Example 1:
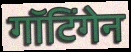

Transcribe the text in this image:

गॉटिंगेन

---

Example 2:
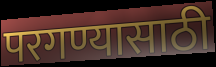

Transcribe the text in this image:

परगण्यासाठी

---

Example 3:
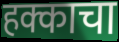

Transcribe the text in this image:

हक्काचा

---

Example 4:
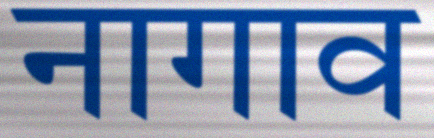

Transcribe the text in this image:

नागाव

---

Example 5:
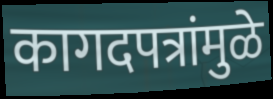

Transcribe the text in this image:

कागदपत्रांमुळे